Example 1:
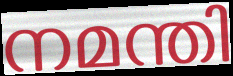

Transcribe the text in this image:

നമന്തി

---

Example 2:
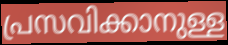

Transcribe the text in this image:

പ്രസവിക്കാനുള്ള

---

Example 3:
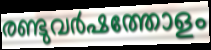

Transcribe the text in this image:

രണ്ടുവർഷത്തോളം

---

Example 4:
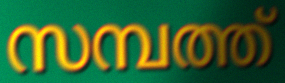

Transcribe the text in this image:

സമ്പത്ത്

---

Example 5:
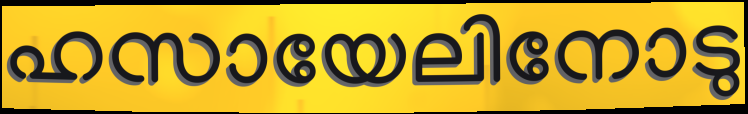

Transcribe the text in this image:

ഹസായേലിനോടു